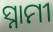
ସ୍ନାମୀ